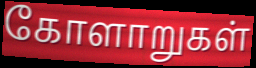
கோளாறுகள்